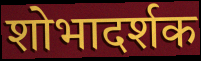
शोभादर्शक